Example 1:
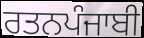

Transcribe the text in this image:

ਰਤਨਪੰਜਾਬੀ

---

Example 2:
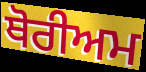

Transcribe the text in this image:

ਥੋਰੀਅਮ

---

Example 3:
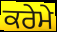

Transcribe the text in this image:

ਕਰੇਮੇ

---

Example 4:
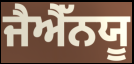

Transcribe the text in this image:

ਜੈਐੱਨਯੂ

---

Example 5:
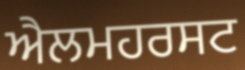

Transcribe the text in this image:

ਐਲਮਹਰਸਟ